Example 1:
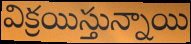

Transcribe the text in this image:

విక్రయిస్తున్నాయి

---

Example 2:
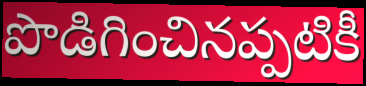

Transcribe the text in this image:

పొడిగించినప్పటికీ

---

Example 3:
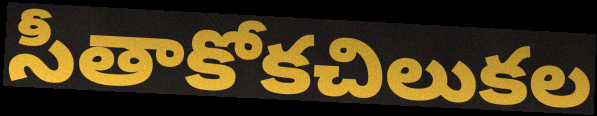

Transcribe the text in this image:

సీతాకోకచిలుకల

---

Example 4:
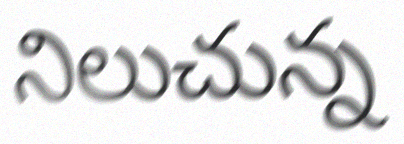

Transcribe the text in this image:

నిలుచున్న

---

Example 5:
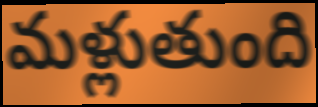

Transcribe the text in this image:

మళ్లుతుంది